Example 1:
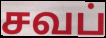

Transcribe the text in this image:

சவப்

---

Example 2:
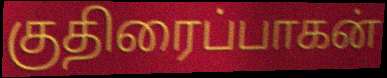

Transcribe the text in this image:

குதிரைப்பாகன்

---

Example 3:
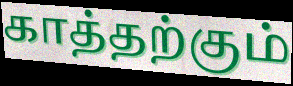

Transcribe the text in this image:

காத்தற்கும்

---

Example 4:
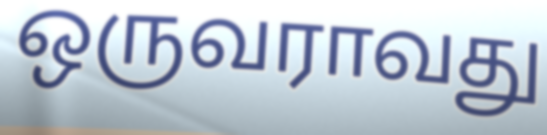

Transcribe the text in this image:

ஒருவராவது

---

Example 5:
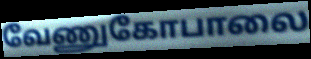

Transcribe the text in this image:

வேணுகோபாலை